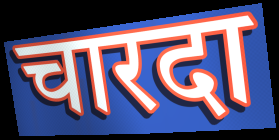
चारदा